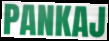
PANKAJ